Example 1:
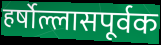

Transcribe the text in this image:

हर्षोल्लासपूर्वक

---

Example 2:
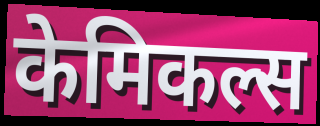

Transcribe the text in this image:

केमिकल्स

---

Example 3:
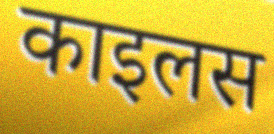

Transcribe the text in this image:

काइलस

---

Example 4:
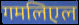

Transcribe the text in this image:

गमलिएल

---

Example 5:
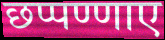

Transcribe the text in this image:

छप्पण्णाए